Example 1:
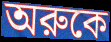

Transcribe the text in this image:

অরুকে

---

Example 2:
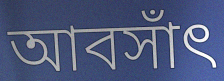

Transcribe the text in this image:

আবসাঁৎ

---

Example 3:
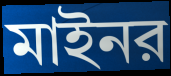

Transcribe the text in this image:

মাইনর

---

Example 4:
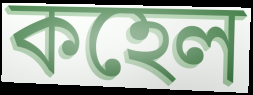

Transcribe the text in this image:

কহেল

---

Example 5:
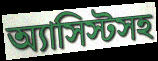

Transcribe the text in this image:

অ্যাসিস্টসহ